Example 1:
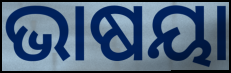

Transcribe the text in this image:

ଭାଷୟା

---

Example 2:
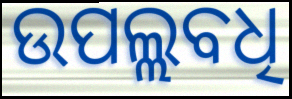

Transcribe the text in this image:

ଉପଲ୍ଲବଧି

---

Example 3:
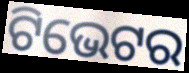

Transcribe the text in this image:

ଟିଭେଟର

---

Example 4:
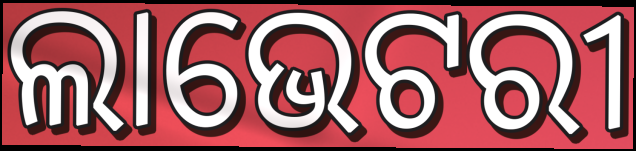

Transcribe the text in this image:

ଲାଭେଟରୀ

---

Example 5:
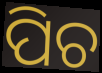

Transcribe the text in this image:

ପିଚ